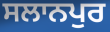
ਸਲਾਨਪੁਰ